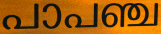
പാപഞ്ച